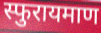
स्फुरायमाण